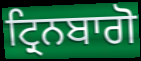
ਟ੍ਰਿਨਬਾਗੋ